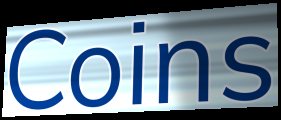
Coins